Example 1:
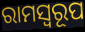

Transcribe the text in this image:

ରାମସ୍ୱରୂପ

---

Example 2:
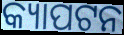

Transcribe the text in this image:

କ୍ୟାପଟନ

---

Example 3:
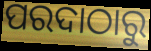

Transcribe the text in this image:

ପରଦାଠାରୁ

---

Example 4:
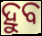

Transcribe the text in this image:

ହୁବ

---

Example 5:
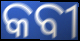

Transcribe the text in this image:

କବୀ